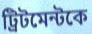
ট্রিটমেন্টকে